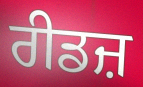
ਰੀਡਜ਼